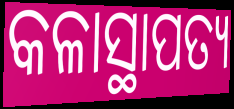
କଳାସ୍ଥାପତ୍ୟ